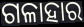
ଗଳାହାର